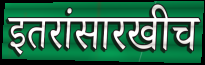
इतरांसारखीच